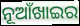
ନୂଆଁଖାଇର